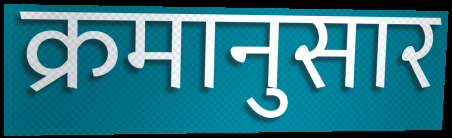
क्रमानुसार